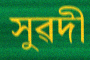
সুৱদী